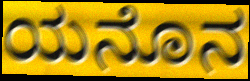
ಯನೊನ